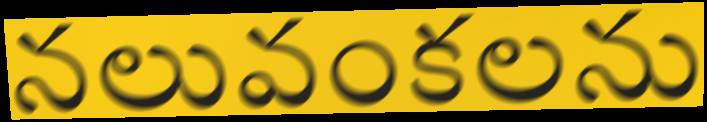
నలువంకలను